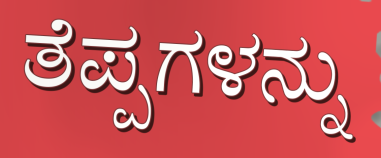
ತೆಪ್ಪಗಳನ್ನು